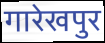
गारेखपुर